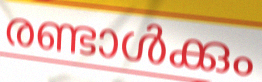
രണ്ടാൾക്കും